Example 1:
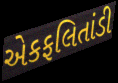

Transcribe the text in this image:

એકફલિતાંડી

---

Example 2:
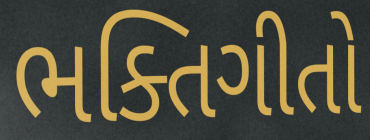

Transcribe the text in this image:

ભક્તિગીતો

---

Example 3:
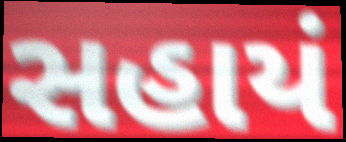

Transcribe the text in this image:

સહાયં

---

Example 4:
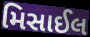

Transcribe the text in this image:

મિસાઈલ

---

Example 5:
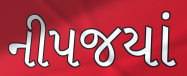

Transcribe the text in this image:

નીપજયાં